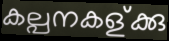
കല്പനകള്ക്കു